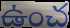
ఉంచ